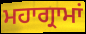
ਮਹਾਗ੍ਰਾਮਾਂ